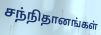
சந்நிதானங்கள்